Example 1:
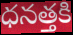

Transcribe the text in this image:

ధనత్తకి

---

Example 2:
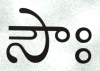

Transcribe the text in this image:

సౌః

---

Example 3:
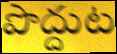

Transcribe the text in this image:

పొద్దుట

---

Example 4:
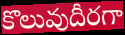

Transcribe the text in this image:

కొలువుదీరగా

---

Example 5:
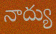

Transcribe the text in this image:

నాద్యు